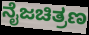
ನೈಜಚಿತ್ರಣ